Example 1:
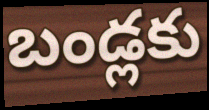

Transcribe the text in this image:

బండ్లకు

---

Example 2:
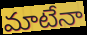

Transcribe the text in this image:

మాటేనా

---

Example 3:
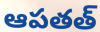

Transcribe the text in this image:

ఆపతత్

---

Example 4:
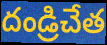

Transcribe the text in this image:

దండ్రిచేత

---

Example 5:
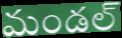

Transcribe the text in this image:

మండల్